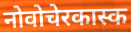
नोवोचेरकास्क